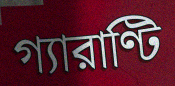
গ্যারাণ্টি